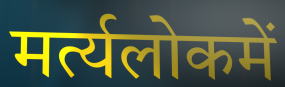
मर्त्यलोकमें